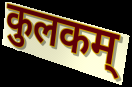
कुलकम्